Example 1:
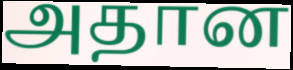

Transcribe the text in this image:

அதான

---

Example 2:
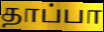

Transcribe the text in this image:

தாப்பா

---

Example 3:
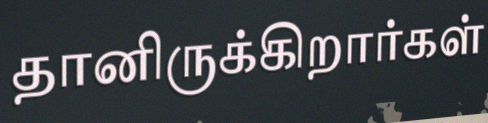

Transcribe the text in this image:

தானிருக்கிறார்கள்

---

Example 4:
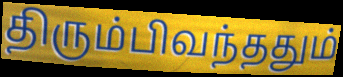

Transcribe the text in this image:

திரும்பிவந்ததும்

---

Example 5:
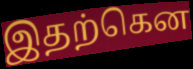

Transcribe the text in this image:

இதற்கென